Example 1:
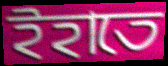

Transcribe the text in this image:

ইহাতে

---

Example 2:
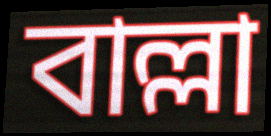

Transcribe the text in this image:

বাল্লা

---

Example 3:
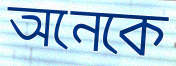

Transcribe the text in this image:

অনেকে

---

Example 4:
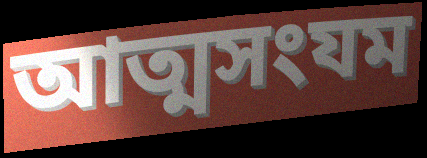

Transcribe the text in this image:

আত্মসংযম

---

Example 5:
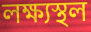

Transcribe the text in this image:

লক্ষ্যস্থল